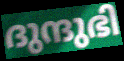
ദുന്ദുഭി